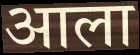
आला